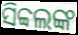
ସିବ୍ବଲଙ୍କ